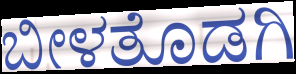
ಬೀಳತೊಡಗಿ